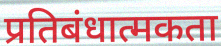
प्रतिबंधात्मकता